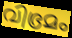
വിഭ്രമം